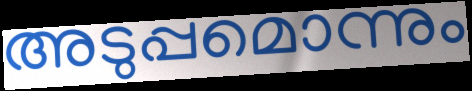
അടുപ്പമൊന്നും